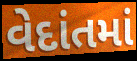
વેદાંતમાં